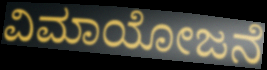
ವಿಮಾಯೋಜನೆ